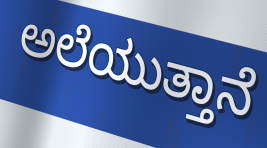
ಅಲೆಯುತ್ತಾನೆ